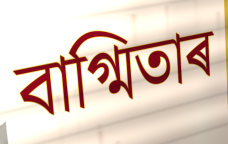
বাগ্মিতাৰ